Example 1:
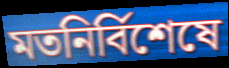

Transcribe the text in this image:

মতনির্বিশেষে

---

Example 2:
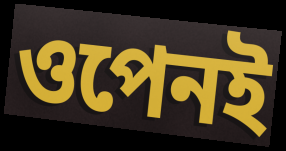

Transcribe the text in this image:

ওপেনই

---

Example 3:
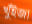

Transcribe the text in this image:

খুঁইজা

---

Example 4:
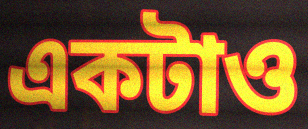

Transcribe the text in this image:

একটাও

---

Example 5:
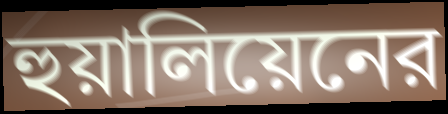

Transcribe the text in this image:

হুয়ালিয়েনের